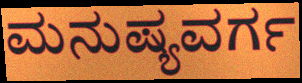
ಮನುಷ್ಯವರ್ಗ